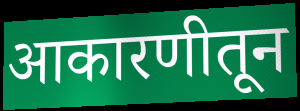
आकारणीतून